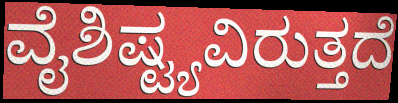
ವೈಶಿಷ್ಟ್ಯವಿರುತ್ತದೆ